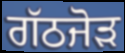
ਗੱਠਜੋੜ